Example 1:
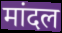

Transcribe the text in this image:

मांदल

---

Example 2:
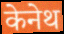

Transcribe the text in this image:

केनेथ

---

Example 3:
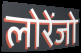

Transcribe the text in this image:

लोरेंजो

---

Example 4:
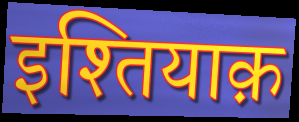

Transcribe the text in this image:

इश्तियाक़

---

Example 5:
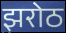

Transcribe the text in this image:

झरोठ